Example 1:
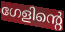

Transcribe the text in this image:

ഗേളിന്റെ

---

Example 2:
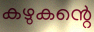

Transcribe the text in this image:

കഴുകന്റെ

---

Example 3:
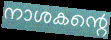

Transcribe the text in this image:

നാശകന്റെ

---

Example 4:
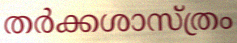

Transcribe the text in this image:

തർക്കശാസ്ത്രം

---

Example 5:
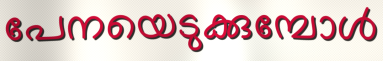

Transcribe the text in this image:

പേനയെടുക്കുമ്പോൾ